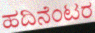
ಹದಿನೆಂಟರ